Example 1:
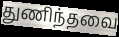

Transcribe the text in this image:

துணிந்தவை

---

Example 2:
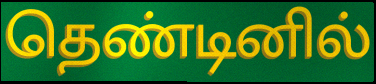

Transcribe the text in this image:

தெண்டினில்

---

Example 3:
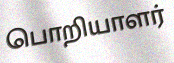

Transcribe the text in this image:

பொறியாளர்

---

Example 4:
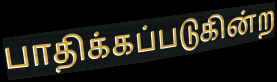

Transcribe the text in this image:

பாதிக்கப்படுகின்ற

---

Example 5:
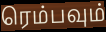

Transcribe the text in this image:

ரெம்பவும்